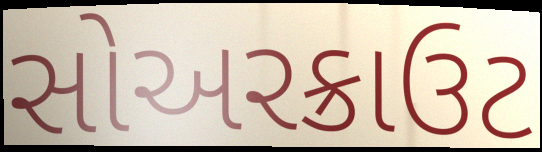
સોઅરક્રાઉટ